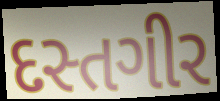
દસ્તગીર